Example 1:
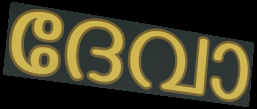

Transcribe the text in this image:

ദേവാ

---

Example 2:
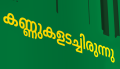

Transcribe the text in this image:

കണ്ണുകളടച്ചിരുന്നു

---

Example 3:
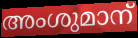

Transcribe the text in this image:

അംശുമാന്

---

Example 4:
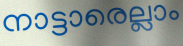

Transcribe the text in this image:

നാട്ടാരെല്ലാം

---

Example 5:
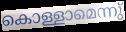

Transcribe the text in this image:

കൊള്ളാമെന്നു്